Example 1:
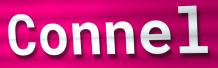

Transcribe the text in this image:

Connel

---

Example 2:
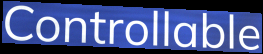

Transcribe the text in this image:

Controllable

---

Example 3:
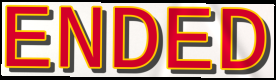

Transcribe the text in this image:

ENDED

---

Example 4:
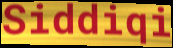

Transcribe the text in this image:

Siddiqi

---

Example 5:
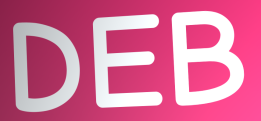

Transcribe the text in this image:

DEB